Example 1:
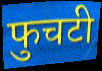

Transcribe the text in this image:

फुचटी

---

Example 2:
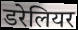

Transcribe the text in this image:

डरेलियर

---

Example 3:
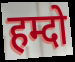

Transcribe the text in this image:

हम्दो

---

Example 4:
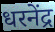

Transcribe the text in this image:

धरनेंद्र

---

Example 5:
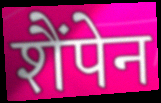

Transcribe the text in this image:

शैंपेन